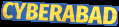
CYBERABAD